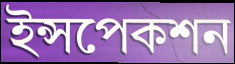
ইন্সপেকশন